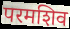
परमशिव